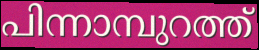
പിന്നാമ്പുറത്ത്